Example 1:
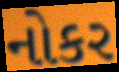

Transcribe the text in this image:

નોકર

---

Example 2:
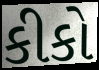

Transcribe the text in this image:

કીકો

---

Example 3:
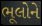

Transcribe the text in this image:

ભૂલોને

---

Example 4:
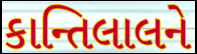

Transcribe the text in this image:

કાન્તિલાલને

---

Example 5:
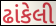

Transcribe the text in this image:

ઢાંકેલી